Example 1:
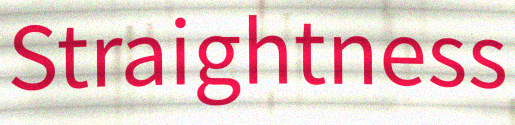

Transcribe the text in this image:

Straightness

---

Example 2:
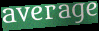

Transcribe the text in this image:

average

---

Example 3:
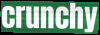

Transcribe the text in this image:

crunchy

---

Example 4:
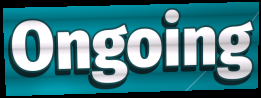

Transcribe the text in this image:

Ongoing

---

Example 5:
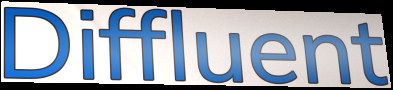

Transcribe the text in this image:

Diffluent